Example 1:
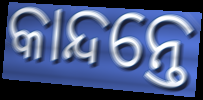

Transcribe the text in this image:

କାନ୍ଦନ୍ତେ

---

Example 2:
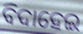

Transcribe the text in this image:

ବିଦାହେଇ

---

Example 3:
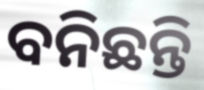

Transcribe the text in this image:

ବନିଛନ୍ତି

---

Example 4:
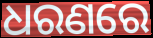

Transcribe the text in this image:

ଧରଣରେ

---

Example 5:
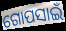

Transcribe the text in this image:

ଗୋପସାଇଁ